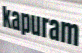
kapuram